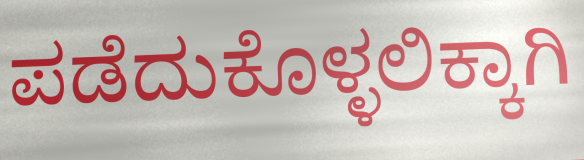
ಪಡೆದುಕೊಳ್ಳಲಿಕ್ಕಾಗಿ